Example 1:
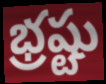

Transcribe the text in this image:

భ్రష్టు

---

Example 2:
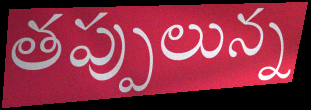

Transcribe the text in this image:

తప్పులున్న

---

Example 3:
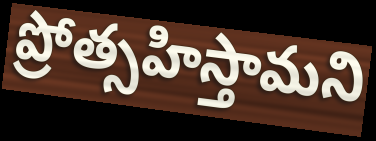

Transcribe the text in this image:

ప్రోత్సహిస్తామని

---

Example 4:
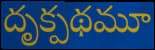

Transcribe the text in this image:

దృక్పథమూ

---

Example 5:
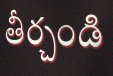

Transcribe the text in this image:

తీర్చండి